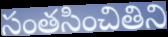
సంతసించితిని